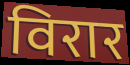
विरार